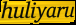
huliyaru